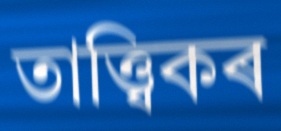
তাত্ত্বিকৰ